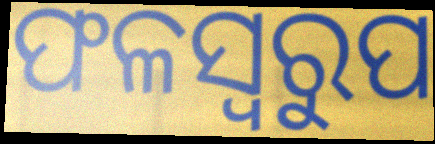
ଫଳସ୍ୱରୁପ